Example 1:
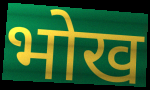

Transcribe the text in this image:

भोख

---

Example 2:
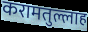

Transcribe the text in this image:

करामतुल्लाह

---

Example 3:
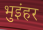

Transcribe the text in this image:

भुइंहर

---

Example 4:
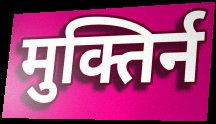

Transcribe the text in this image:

मुक्तिर्न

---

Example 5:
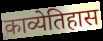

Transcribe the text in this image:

काव्येतिहास